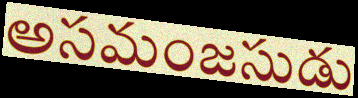
అసమంజసుడు